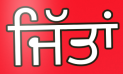
ਜਿੱਤਾਂ